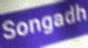
Songadh